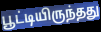
பூட்டியிருந்தது